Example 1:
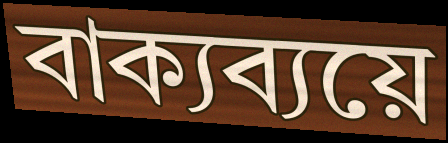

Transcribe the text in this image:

বাক্যব্যয়ে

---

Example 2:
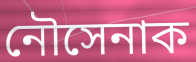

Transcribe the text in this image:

নৌসেনাক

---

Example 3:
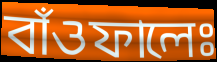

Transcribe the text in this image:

বাঁওফালেঃ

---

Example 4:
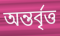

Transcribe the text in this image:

অন্তৰ্বৃত্ত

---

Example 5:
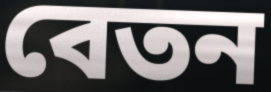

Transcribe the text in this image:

বেতন